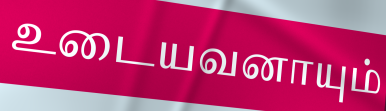
உடையவனாயும்